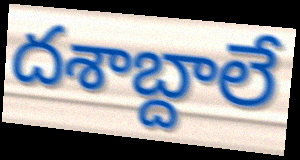
దశాబ్దాలే